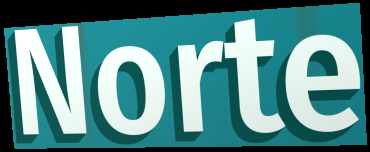
Norte